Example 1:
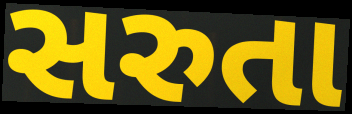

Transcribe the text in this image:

સરુતા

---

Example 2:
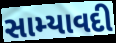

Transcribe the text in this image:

સામ્યાવદી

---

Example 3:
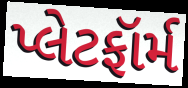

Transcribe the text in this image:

પ્લેટફૉર્મ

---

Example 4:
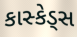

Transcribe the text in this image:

કાસ્કેડ્સ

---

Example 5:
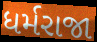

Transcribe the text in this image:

ધર્મરાજા